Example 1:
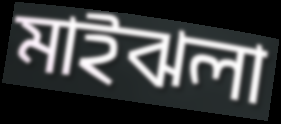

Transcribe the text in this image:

মাইঝলা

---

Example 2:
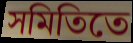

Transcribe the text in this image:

সমিতিতে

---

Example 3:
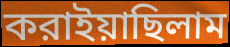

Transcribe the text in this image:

করাইয়াছিলাম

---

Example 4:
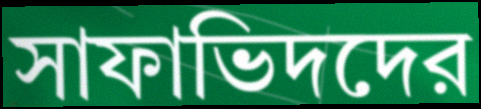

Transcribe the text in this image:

সাফাভিদদের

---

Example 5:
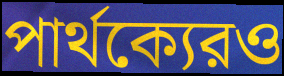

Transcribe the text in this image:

পার্থক্যেরও